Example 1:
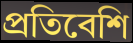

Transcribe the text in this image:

প্রতিবেশি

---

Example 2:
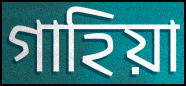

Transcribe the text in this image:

গাহিয়া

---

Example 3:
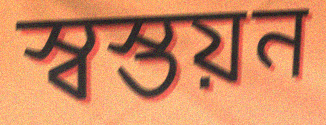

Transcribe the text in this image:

স্বস্তয়ন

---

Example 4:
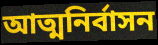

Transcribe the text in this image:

আত্মনির্বাসন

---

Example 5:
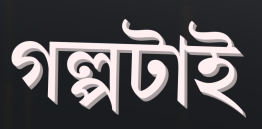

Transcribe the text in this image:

গল্পটাই